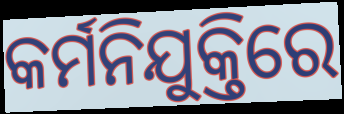
କର୍ମନିଯୁକ୍ତିରେ